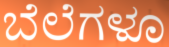
ಬೆಲೆಗಳೂ